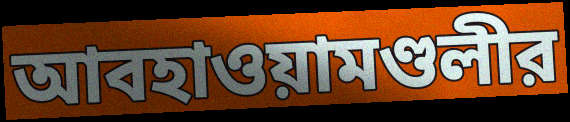
আবহাওয়ামণ্ডলীর